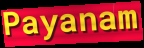
Payanam